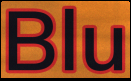
Blu